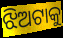
ଝିଅଟାକୁ